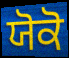
ਯੋਕੋ